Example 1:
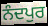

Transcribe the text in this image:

ਨੰਦਪੁਰ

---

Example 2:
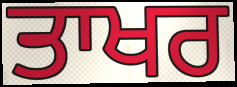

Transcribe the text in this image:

ਤਾਖਰ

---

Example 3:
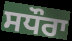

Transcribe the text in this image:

ਸਧੌਰਾ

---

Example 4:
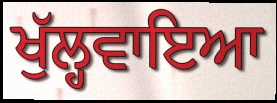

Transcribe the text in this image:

ਖੁੱਲ੍ਹਵਾਇਆ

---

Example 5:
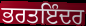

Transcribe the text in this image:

ਭਰਤਇੰਦਰ